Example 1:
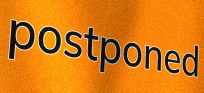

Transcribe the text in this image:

postponed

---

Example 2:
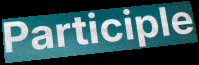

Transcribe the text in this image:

Participle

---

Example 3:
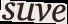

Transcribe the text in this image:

suve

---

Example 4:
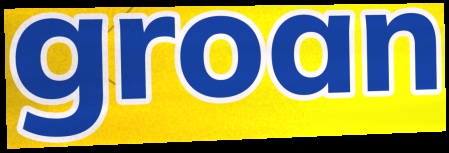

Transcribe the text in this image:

groan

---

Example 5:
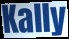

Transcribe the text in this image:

Kally